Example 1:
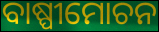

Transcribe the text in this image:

ବାଷ୍ପୀମୋଚନ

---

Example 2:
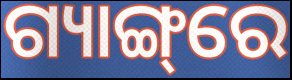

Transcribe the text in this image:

ଗ୍ୟାଙ୍ଗ୍‌ରେ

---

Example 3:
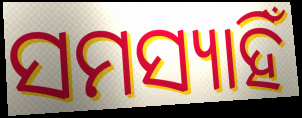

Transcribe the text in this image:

ସମସ୍ୟାହିଁ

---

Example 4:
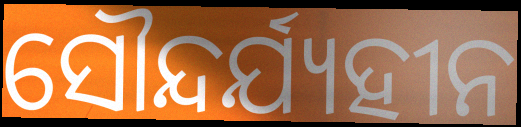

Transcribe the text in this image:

ସୌନ୍ଦର୍ଯ୍ୟହୀନ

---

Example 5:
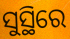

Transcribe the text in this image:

ସୁସ୍ଥିରେ